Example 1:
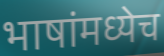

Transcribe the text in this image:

भाषांमध्येच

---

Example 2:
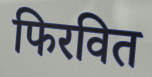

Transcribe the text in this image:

फिरवित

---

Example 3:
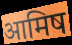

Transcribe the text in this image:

आमिष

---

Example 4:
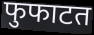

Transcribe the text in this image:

फुफाटत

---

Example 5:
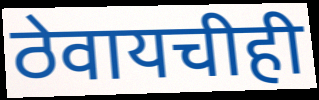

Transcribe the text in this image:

ठेवायचीही